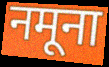
नमूना